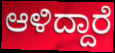
ಆಳಿದ್ದಾರೆ